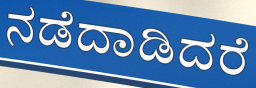
ನಡೆದಾಡಿದರೆ